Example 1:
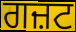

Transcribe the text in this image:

ਗਜ਼ਟ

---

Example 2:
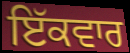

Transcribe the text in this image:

ਇੱਕਵਾਰ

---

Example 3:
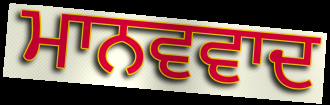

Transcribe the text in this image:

ਮਾਨਵਵਾਦ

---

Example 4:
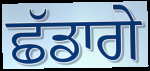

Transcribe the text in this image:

ਛੱਡਾਗੇ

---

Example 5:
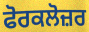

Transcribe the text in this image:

ਫੋਰਕਲੋਜ਼ਰ